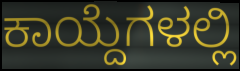
ಕಾಯ್ದೆಗಳಲ್ಲಿ